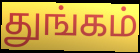
துங்கம்